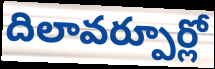
దిలావర్పూర్లో